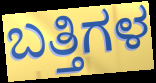
ಬತ್ತಿಗಳ